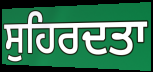
ਸੁਹਿਰਦਤਾ